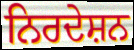
ਨਿਰਦੇਸ਼ਨ